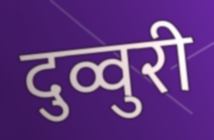
दुव्वुरी